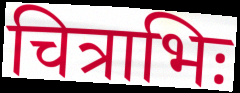
चित्राभिः